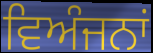
ਵਿਅੰਜਨਾਂ